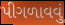
પીગળાવવું